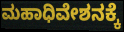
ಮಹಾಧಿವೇಶನಕ್ಕೆ